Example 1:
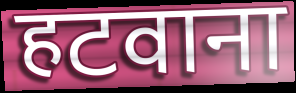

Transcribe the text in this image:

हटवाना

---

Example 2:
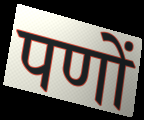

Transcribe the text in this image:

पणों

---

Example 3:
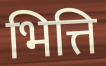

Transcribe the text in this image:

भित्ति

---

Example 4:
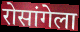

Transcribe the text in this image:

रोसांगेला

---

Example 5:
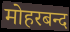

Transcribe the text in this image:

मोहरबन्द